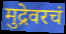
मुद्रेवरचं